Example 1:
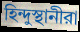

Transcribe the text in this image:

হিন্দুস্থানীরা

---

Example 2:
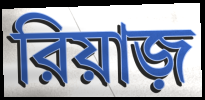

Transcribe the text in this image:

রিয়াজ়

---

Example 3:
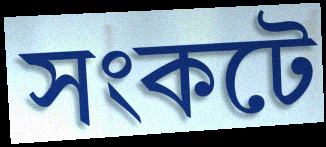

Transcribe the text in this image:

সংকটে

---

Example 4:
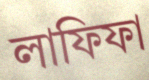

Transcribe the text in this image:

লাফিফা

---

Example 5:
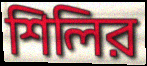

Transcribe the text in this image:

শিলির